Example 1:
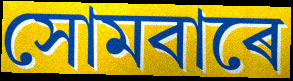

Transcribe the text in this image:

সোমবাৰে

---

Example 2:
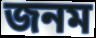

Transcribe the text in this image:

জনম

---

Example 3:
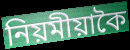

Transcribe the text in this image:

নিয়মীয়াকৈ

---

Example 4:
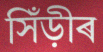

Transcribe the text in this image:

সিঁড়ীৰ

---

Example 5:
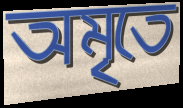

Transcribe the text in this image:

অমৃতে